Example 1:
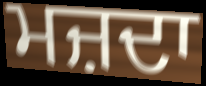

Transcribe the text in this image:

ਮਜ਼ਦਾ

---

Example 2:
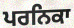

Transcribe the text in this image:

ਪਰਨਿਕਾ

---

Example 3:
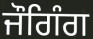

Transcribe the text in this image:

ਜੌਗਿੰਗ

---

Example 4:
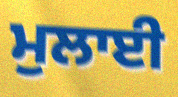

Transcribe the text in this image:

ਮੁਲਾਈ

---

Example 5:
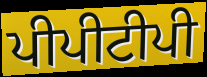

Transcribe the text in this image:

ਪੀਪੀਟੀਪੀ